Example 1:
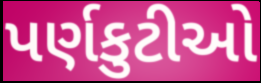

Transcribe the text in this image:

પર્ણકુટીઓ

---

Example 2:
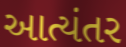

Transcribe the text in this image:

આત્યંતર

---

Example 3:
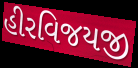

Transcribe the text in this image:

હીરવિજયજી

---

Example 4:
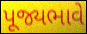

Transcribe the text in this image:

પૂજ્યભાવે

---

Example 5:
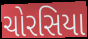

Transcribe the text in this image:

ચોરસિયા